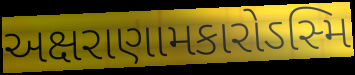
અક્ષરાણામકારોઽસ્મિ